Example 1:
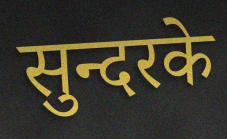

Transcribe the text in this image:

सुन्दरके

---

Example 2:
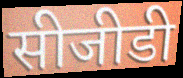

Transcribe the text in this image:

सीजीडी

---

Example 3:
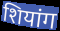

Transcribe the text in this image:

शियांग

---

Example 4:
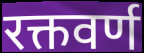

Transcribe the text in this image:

रक्तवर्ण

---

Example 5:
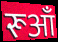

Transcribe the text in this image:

रूआँ